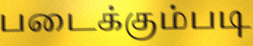
படைக்கும்படி